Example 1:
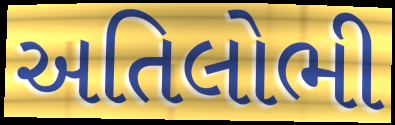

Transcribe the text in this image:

અતિલોભી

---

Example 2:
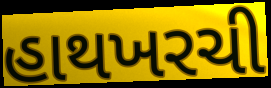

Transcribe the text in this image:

હાથખરચી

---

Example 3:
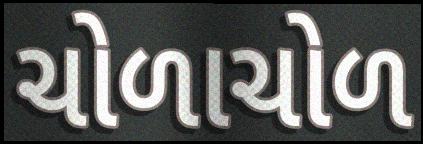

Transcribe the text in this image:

ચોળાચોળ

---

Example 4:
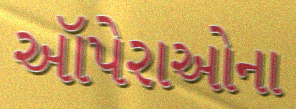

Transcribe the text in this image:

ઑપેરાઓના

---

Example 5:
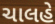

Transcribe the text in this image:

ચાલહે